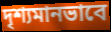
দৃশ্যমানভাবে